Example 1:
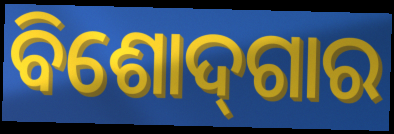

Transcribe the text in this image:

ବିଶୋଦ୍‌ଗାର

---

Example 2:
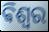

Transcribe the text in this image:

ଵିଶ୍ୱର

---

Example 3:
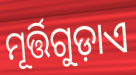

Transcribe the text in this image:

ମୂର୍ତ୍ତିଗୁଡ଼ାଏ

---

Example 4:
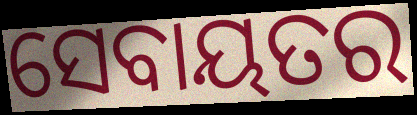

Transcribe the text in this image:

ସେବାୟତର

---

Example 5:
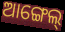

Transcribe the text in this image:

ଆଙ୍ଗେଲ୍